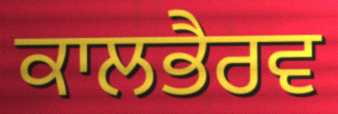
ਕਾਲਭੈਰਵ